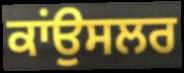
ਕਾਂਉਸਲਰ